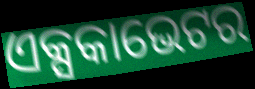
ଏକ୍ସକାଭେଟର